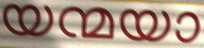
യന്മയാ